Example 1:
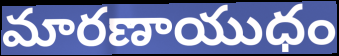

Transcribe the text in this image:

మారణాయుధం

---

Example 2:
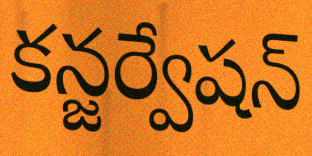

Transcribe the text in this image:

కన్జర్వేషన్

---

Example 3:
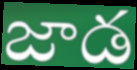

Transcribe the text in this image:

జాడ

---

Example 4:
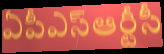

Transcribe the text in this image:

ఏపీఎస్ఆర్టీసీ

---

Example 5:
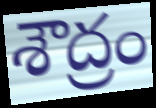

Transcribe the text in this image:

శౌద్రం